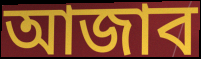
আজাব